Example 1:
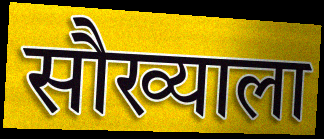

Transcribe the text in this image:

सौख्याला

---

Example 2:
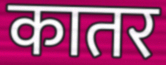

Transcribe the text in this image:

कातर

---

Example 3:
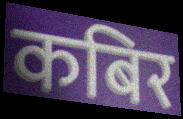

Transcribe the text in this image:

कबिर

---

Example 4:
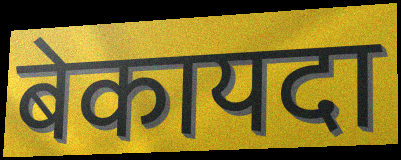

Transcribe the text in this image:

बेकायदा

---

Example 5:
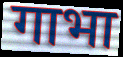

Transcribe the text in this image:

गाभा